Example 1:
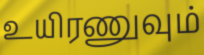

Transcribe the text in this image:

உயிரணுவும்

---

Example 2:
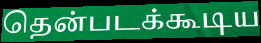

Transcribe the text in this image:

தென்படக்கூடிய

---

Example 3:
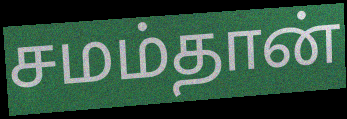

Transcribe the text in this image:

சமம்தான்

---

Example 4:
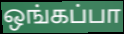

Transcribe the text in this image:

ஒங்கப்பா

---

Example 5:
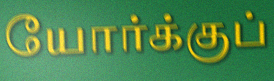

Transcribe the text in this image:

யோர்க்குப்